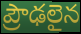
ప్రౌఢలైన